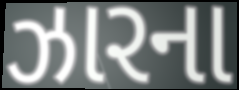
ઝારના